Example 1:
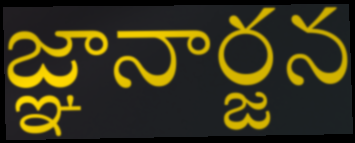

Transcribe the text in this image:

జ్ఞానార్జన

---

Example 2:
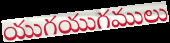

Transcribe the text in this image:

యుగయుగములు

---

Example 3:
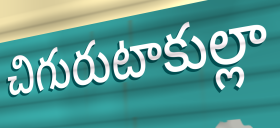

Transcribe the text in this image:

చిగురుటాకుల్లా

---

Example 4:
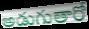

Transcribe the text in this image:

అడుగుతారో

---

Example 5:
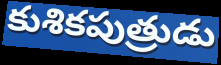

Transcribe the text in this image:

కుశికపుత్రుడు